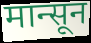
मान्सून